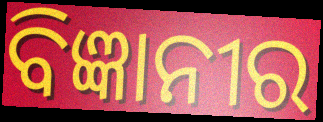
ବିଜ୍ଞାନୀର